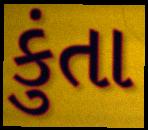
કુંતા